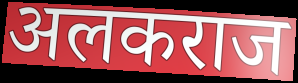
अलकराज